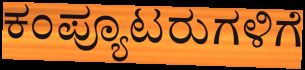
ಕಂಪ್ಯೂಟರುಗಳಿಗೆ